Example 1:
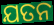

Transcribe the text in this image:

ଯତନ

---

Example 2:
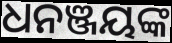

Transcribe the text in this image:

ଧନଞ୍ଜୟଙ୍କ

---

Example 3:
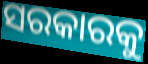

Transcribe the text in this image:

ସରକାରକୁ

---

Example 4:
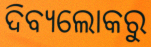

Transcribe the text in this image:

ଦିବ୍ୟଲୋକରୁ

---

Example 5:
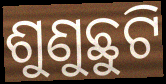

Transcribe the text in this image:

ଶୁଣୁଛୁଟି